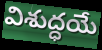
విశుద్ధయే